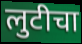
लुटीचा